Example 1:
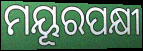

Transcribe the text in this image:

ମୟୂରପକ୍ଷୀ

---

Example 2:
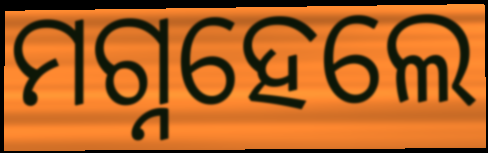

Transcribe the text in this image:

ମଗ୍ନହେଲେ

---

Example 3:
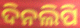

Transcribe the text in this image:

ଦିନଲିପି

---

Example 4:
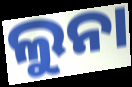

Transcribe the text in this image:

ଲୁନା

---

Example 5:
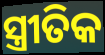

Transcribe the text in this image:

ସ୍ତ୍ରୀତିକ